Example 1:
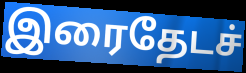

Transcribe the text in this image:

இரைதேடச்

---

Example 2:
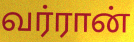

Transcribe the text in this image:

வர்ரான்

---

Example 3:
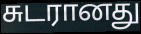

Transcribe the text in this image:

சுடரானது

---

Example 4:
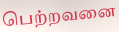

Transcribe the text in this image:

பெற்றவனை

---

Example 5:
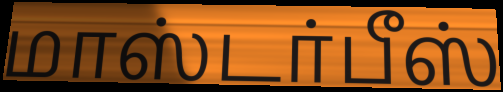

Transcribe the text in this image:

மாஸ்டர்பீஸ்